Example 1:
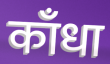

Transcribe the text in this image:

काँधा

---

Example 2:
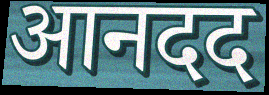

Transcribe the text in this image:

आनदद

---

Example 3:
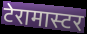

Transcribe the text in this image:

टेरामास्टर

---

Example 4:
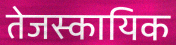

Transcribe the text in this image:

तेजस्कायिक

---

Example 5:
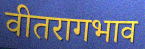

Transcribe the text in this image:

वीतरागभाव